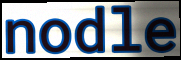
nodle